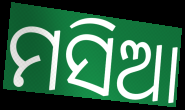
ମସିଆ